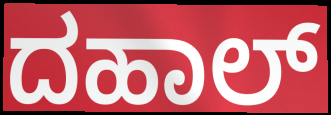
ದಹಾಲ್